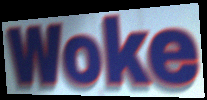
Woke